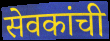
सेवकांची